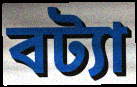
বট্যা